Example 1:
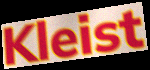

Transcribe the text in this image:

Kleist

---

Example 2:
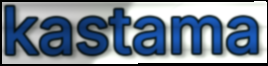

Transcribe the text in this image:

kastama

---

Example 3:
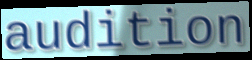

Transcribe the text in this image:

audition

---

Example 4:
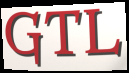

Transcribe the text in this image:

GTL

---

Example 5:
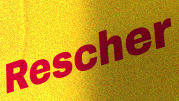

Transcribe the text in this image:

Rescher